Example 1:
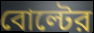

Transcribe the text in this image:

বোল্টের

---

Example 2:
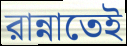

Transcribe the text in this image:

রান্নাতেই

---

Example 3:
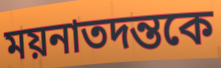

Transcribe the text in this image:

ময়নাতদন্তকে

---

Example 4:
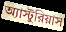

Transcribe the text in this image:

অ্যাস্টুরিয়াস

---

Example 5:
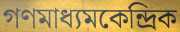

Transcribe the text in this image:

গণমাধ্যমকেন্দ্রিক